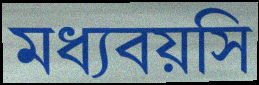
মধ্যবয়সি